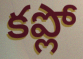
కప్లో